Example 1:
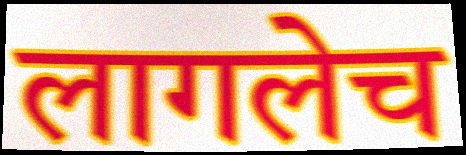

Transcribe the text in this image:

लागलेच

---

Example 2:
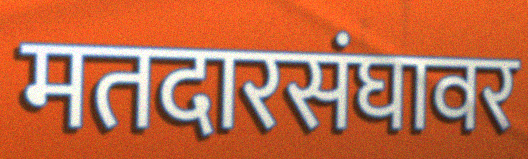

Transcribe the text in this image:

मतदारसंघावर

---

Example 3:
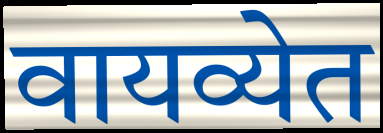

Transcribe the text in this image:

वायव्येत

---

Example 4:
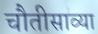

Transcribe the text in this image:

चौतीसाव्या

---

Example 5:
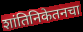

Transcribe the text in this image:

शांतिनिकेतनचा